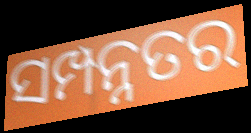
ସମ୍ପନ୍ନତର